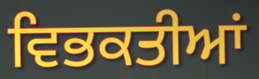
ਵਿਭਕਤੀਆਂ